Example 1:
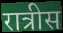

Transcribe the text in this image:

रात्रीस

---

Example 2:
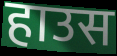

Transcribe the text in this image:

हाउस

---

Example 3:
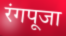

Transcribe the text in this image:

रंगपूजा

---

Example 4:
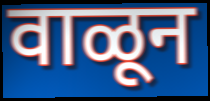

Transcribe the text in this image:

वाळून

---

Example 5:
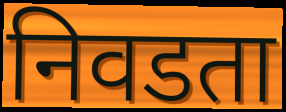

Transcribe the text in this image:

निवडता